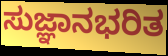
ಸುಜ್ಞಾನಭರಿತ